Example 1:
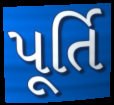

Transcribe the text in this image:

પૂર્તિ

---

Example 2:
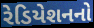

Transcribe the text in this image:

રેડિયેશનનો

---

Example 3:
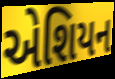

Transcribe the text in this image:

એશિયન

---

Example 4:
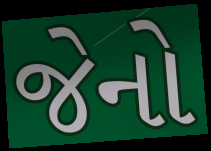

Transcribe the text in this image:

જેનો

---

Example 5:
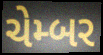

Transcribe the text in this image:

ચેમ્બર